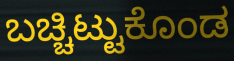
ಬಚ್ಚಿಟ್ಟುಕೊಂಡ